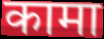
कामा